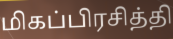
மிகப்பிரசித்தி